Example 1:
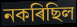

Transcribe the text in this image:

নকৰিছিল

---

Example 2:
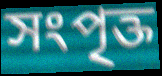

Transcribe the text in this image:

সংপৃক্ত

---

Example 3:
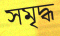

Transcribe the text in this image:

সমৃদ্ধ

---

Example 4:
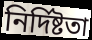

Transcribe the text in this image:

নিৰ্দিষ্টতা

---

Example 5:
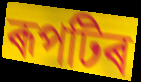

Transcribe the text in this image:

ৰূপটিৰ